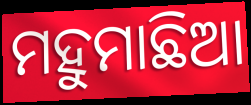
ମହୁମାଛିଆ